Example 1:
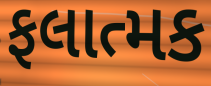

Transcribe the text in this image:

ફલાત્મક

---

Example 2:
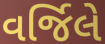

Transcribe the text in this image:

વર્જિલે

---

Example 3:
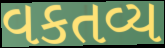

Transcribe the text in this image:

વકતવ્ય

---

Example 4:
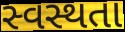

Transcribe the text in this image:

સ્વસ્થતા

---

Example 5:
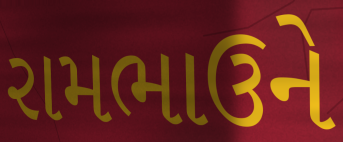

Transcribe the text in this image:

રામભાઉને